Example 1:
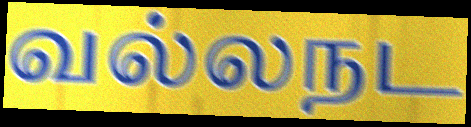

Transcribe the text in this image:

வல்லநட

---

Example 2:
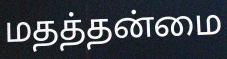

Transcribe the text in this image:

மதத்தன்மை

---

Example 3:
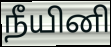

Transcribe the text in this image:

நீயினி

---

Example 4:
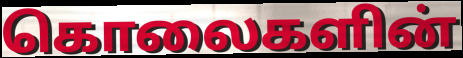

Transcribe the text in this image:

கொலைகளின்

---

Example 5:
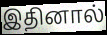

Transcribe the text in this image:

இதினால்